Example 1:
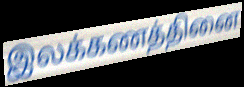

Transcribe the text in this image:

இலக்கணத்தினை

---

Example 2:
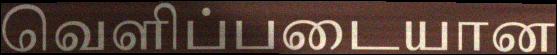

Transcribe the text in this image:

வெளிப்படையான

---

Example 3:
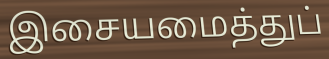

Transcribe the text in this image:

இசையமைத்துப்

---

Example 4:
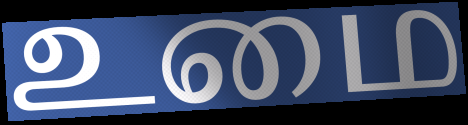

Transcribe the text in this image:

உமை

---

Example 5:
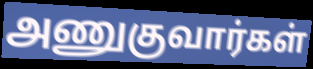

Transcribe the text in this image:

அணுகுவார்கள்